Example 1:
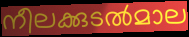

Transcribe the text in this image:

നീലക്കുടൽമാല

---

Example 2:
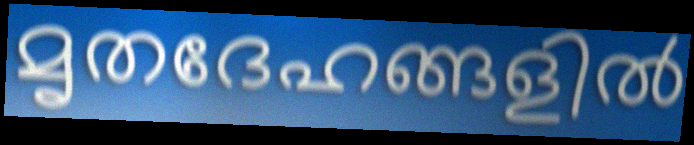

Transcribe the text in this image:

മൃതദേഹങ്ങളിൽ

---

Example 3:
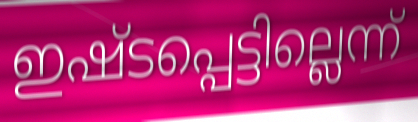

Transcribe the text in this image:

ഇഷ്ടപ്പെട്ടില്ലെന്ന്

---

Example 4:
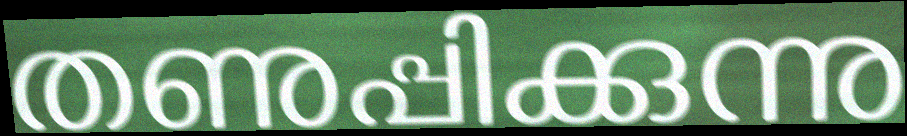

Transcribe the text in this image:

തണുപ്പിക്കുന്നു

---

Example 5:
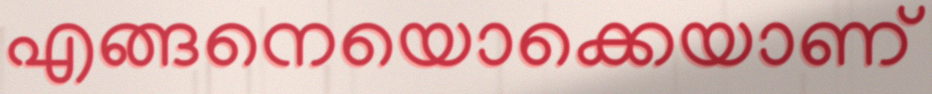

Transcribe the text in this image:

എങ്ങനെയൊക്കെയാണ്